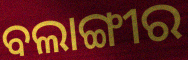
ବଲାଙ୍ଗୀର